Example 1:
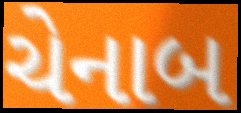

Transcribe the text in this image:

ચેનાબ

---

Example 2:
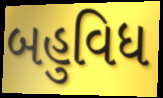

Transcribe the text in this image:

બહુવિધ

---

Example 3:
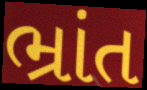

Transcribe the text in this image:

ભ્રાંત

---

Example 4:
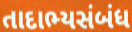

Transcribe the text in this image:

તાદાભ્યસંબંધ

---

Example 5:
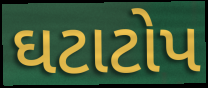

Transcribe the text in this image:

ઘટાટોપ